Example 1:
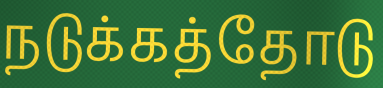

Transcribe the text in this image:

நடுக்கத்தோடு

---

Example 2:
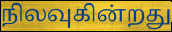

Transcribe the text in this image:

நிலவுகின்றது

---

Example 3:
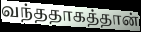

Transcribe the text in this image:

வந்ததாகத்தான்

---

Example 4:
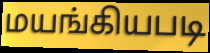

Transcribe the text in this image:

மயங்கியபடி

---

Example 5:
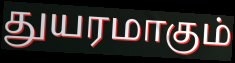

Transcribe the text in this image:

துயரமாகும்